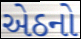
એઠનો